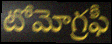
టోమోగ్రఫీ